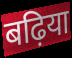
बढ़िया